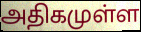
அதிகமுள்ள